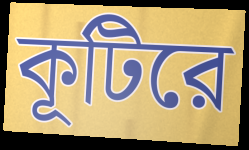
কূটিরে